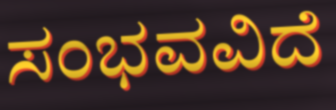
ಸಂಭವವಿದೆ